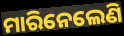
ମାରିନେଲେଣି